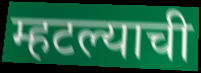
म्हटल्याची